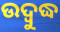
ଉଦ୍ବୁଦ୍ଧ